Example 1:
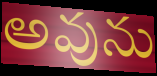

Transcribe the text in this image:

అవును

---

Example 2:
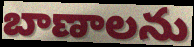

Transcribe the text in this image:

బాణాలను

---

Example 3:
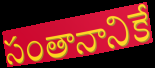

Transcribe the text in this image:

సంతానానికే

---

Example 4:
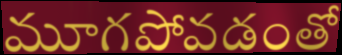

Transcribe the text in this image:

మూగపోవడంతో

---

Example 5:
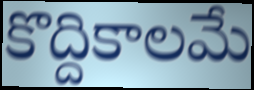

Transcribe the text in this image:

కొద్దికాలమే